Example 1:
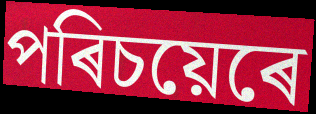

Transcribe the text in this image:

পৰিচয়েৰে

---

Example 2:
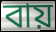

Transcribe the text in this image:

বায়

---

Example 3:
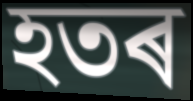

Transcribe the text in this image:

হতৰ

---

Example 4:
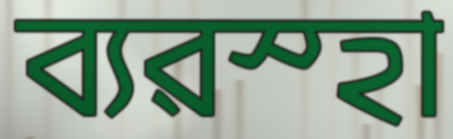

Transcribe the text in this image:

ব্যৱস্হা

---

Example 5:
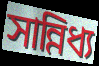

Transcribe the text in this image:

সান্নিধ্য